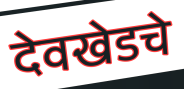
देवखेडचे